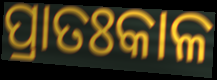
ପ୍ରାତଃକାଳ